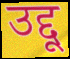
उद्दू